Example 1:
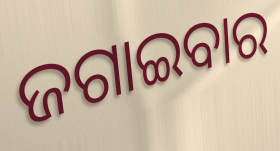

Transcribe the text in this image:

ଜଗାଇବାର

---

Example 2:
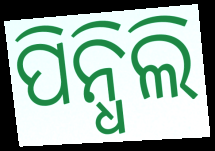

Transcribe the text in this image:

ପିନ୍ଧିଲି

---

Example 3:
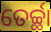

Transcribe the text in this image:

ତେର୍ଚ୍ଛା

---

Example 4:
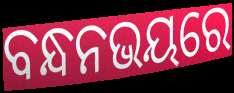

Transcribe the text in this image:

ବନ୍ଧନଭୟରେ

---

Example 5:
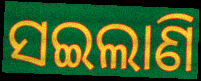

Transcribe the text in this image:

ସଇଲାଣି